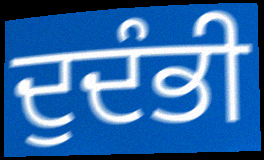
ਦੁਦੰਭੀ